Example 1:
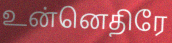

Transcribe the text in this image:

உன்னெதிரே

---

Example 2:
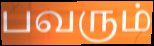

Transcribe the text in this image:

பவரும்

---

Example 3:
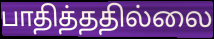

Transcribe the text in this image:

பாதித்ததில்லை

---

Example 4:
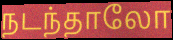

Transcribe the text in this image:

நடந்தாலோ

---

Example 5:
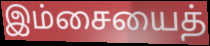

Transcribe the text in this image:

இம்சையைத்